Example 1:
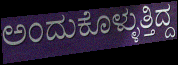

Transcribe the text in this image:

ಅಂದುಕೊಳ್ಳುತ್ತಿದ್ದ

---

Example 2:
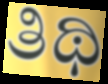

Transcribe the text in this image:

ತಿಥಿ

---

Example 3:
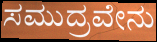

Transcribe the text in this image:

ಸಮುದ್ರವೇನು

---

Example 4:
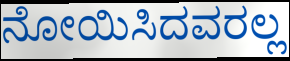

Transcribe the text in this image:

ನೋಯಿಸಿದವರಲ್ಲ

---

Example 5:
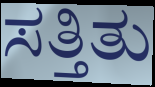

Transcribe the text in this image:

ಸತ್ತಿತು